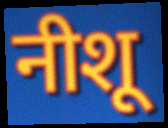
नीशू